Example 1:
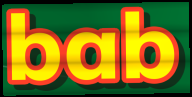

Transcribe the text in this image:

bab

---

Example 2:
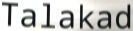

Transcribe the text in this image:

Talakad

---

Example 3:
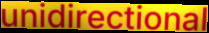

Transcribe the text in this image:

unidirectional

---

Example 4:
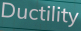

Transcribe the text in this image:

Ductility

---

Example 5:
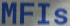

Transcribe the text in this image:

MFIs